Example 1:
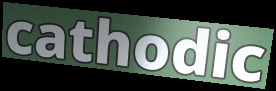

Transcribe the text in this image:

cathodic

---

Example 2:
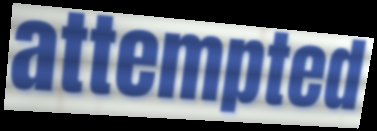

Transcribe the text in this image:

attempted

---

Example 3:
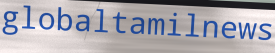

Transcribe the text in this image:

globaltamilnews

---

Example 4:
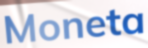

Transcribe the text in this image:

Moneta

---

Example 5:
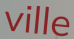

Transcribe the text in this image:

ville